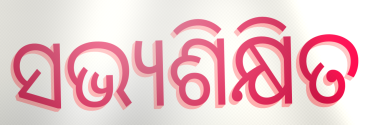
ସଭ୍ୟଶିକ୍ଷିତ